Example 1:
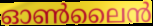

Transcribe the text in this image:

ഓൺലൈൻ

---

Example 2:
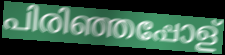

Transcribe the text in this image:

പിരിഞ്ഞപ്പോള്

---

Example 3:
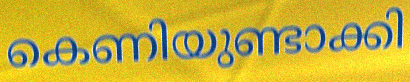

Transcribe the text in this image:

കെണിയുണ്ടാക്കി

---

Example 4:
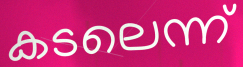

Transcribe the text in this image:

കടലെന്ന്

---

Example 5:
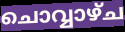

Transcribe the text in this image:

ചൊവ്വാഴ്ച